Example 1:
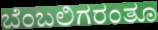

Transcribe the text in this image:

ಬೆಂಬಲಿಗರಂತೂ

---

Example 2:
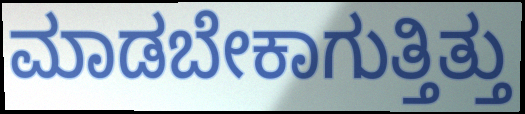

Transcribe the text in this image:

ಮಾಡಬೇಕಾಗುತ್ತಿತ್ತು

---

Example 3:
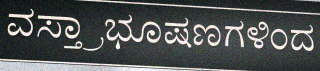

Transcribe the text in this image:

ವಸ್ತ್ರಾಭೂಷಣಗಳಿಂದ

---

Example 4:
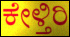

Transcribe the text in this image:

ಕೇಳ್ತಿರಿ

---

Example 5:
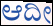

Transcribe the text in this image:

ಆದೀ